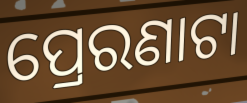
ପ୍ରେରଣାଟା